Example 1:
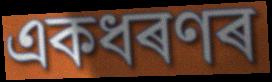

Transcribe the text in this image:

একধৰণৰ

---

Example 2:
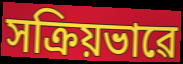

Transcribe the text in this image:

সক্ৰিয়ভাৱে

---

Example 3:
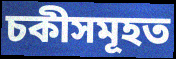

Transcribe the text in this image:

চকীসমূহত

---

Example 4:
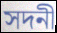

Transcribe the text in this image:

সদনী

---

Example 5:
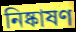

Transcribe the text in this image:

নিষ্কাষণ